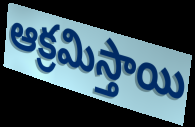
ఆక్రమిస్తాయి